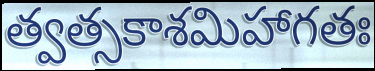
త్వత్సకాశమిహాగతః